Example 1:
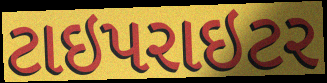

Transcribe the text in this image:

ટાઇપરાઇટર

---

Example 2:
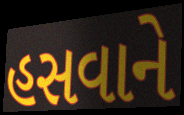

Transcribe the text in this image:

હસવાને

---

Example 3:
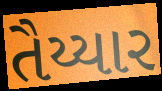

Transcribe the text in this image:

તૈય્યાર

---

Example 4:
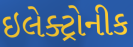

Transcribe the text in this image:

ઇલેક્ટ્રોનીક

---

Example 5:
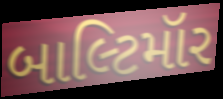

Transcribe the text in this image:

બાલ્ટિમૉર